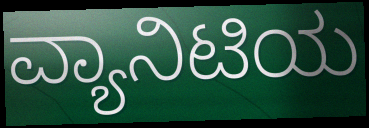
ವ್ಯಾನಿಟಿಯ